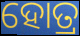
ହୋତ୍ର